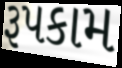
રૂપકામ